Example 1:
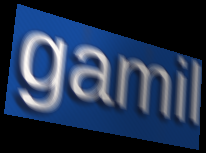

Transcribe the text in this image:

gamil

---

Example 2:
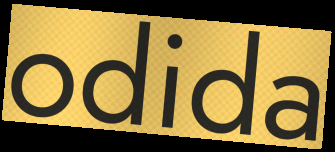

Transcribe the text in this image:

odida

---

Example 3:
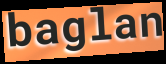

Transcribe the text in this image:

baglan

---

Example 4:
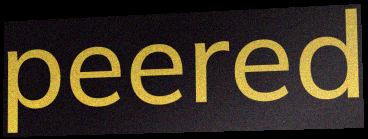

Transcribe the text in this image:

peered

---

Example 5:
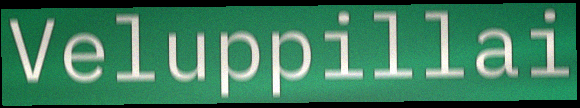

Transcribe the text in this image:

Veluppillai